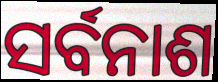
ସର୍ବନାଶ